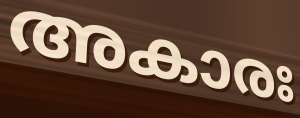
അകാരഃ